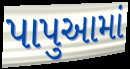
પાપુઆમાં